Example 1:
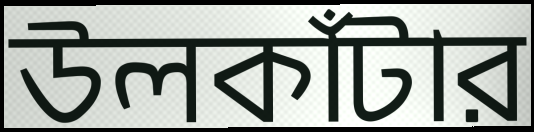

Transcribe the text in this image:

উলকাঁটার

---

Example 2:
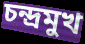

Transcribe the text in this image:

চন্দ্রমুখ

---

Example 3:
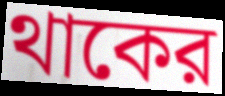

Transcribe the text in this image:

থাকের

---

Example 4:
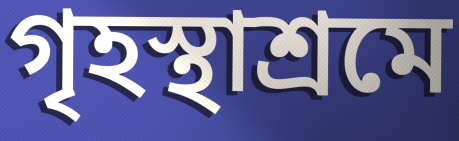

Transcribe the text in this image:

গৃহস্থাশ্রমে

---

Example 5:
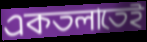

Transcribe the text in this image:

একতলাতেই